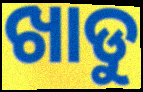
ଖାଡୁ